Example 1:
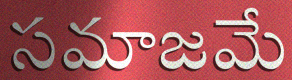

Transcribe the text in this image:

సమాజమే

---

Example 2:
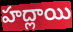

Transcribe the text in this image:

హద్లాయి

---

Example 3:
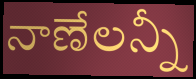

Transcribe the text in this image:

నాణేలన్నీ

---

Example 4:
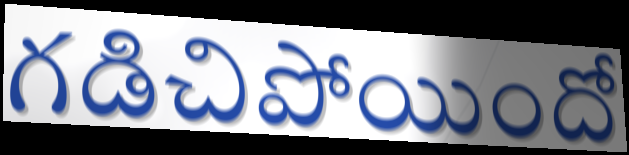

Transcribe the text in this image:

గడిచిపోయిందో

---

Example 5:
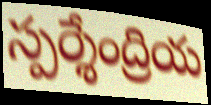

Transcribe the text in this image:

స్పర్శేంద్రియ